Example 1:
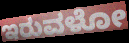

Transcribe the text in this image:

ಇರುವಳೋ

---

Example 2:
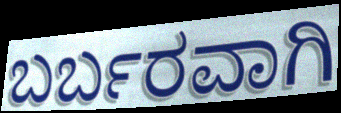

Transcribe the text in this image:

ಬರ್ಬರವಾಗಿ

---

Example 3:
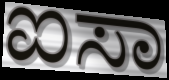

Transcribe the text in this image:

ಐಸಾ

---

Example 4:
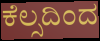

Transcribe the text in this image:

ಕೆಲ್ಸದಿಂದ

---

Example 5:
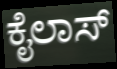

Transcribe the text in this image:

ಕೈಲಾಸ್